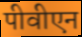
पीवीएन